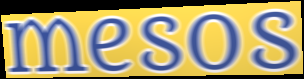
mesos